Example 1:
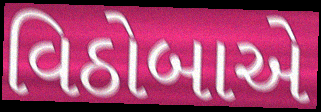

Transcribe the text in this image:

વિઠોબાએ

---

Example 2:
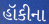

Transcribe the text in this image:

હૉકીના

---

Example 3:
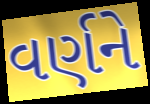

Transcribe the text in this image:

વર્ણને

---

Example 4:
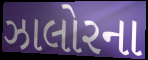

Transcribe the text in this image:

ઝાલોરના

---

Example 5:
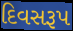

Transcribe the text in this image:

દિવસરૂપ